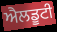
ਐਲਡੂਟੀ